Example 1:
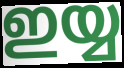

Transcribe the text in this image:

ഇയ്യ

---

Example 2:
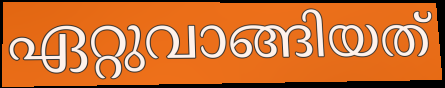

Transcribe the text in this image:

ഏറ്റുവാങ്ങിയത്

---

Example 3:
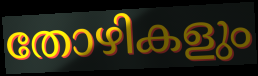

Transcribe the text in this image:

തോഴികളും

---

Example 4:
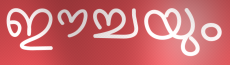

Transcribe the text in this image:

ഈച്ചയും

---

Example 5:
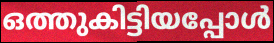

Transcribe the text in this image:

ഒത്തുകിട്ടിയപ്പോൾ